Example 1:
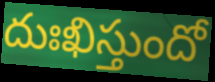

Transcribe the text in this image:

దుఃఖిస్తుందో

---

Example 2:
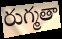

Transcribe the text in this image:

రుగ్మతా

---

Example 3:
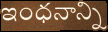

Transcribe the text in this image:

ఇంధనాన్ని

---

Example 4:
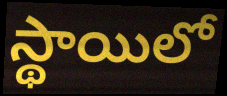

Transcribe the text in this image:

స్థాయిలో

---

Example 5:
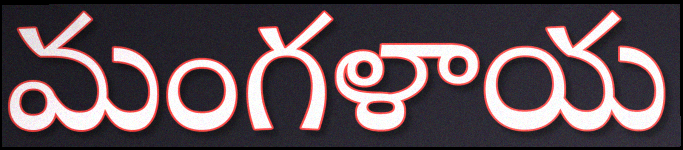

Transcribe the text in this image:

మంగళాయ